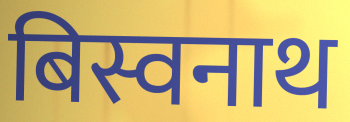
बिस्वनाथ